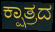
ಕ್ಷಾತ್ರದ